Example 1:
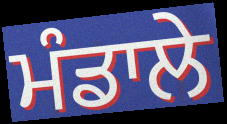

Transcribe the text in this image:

ਮੰਡਾਲੇ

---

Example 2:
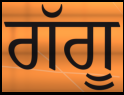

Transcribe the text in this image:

ਗੱਗੂ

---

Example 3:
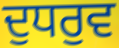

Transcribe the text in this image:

ਦੁਧਰੁਵ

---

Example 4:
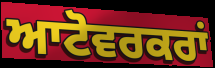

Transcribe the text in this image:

ਆਟੋਵਰਕਰਾਂ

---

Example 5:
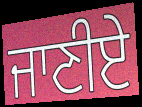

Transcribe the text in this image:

ਜਾਣੀਏ